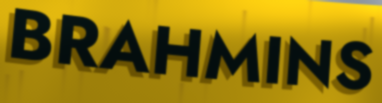
BRAHMINS